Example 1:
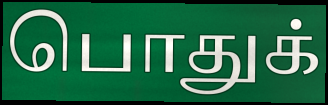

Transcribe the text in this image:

பொதுக்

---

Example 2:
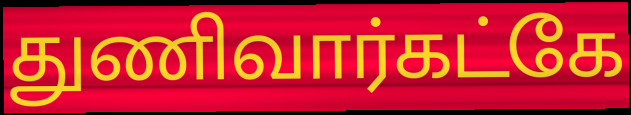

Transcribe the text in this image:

துணிவார்கட்கே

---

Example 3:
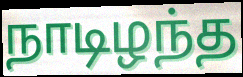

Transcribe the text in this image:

நாடிழந்த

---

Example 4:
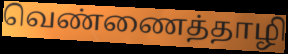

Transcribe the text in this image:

வெண்ணைத்தாழி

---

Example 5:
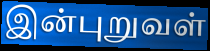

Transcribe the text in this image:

இன்புறுவள்